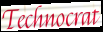
Technocrat